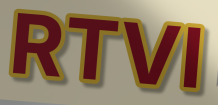
RTVI